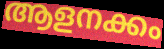
ആളനക്കം